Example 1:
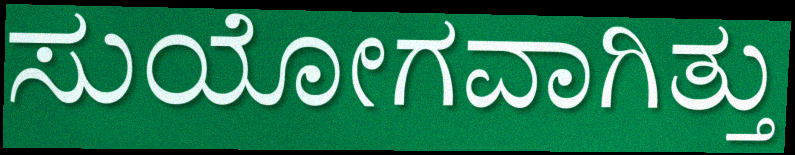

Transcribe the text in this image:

ಸುಯೋಗವಾಗಿತ್ತು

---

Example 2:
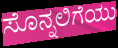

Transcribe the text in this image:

ಸೊನ್ನಲಿಗೆಯು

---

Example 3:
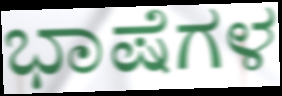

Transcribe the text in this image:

ಭಾಷೆಗಳ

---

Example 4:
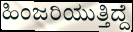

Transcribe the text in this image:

ಹಿಂಜರಿಯುತ್ತಿದ್ದೆ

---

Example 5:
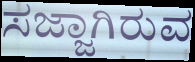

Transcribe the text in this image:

ಸಜ್ಜಾಗಿರುವ